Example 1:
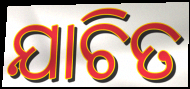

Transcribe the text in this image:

ଯାଚିତ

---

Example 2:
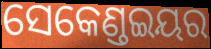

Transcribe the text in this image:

ସେକେଣ୍ଡଇୟର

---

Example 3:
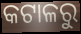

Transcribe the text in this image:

କଟାଳରୁ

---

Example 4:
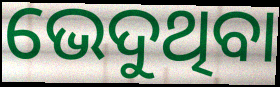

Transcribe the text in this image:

ଭେଦୁଥିବା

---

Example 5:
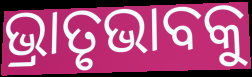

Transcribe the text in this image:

ଭ୍ରାତୃଭାବକୁ